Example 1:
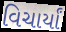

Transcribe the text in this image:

વિચાર્યાં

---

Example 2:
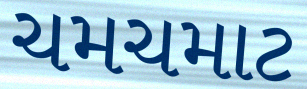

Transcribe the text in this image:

ચમચમાટ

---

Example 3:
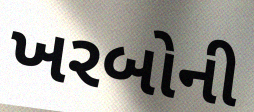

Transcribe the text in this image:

ખરબોની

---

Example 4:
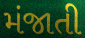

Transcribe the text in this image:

મંજાતી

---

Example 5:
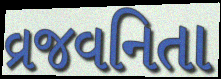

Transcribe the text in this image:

વ્રજવનિતા